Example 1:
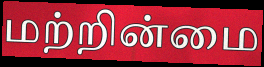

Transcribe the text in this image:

மற்றின்மை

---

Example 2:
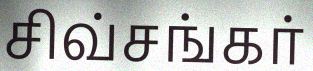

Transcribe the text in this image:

சிவ்சங்கர்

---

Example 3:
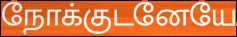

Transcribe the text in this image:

நோக்குடனேயே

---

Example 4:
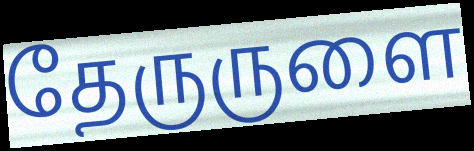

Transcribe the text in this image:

தேருருளை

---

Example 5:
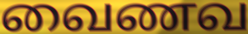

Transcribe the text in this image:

வைணவ